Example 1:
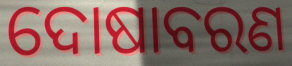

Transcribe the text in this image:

ଦୋଷାବରଣ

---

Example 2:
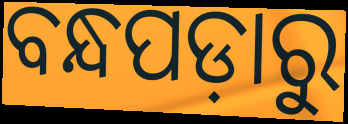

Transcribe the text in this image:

ବନ୍ଧପଡ଼ାରୁ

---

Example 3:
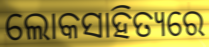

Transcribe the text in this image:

ଲୋକସାହିତ୍ୟରେ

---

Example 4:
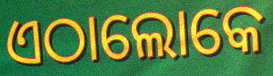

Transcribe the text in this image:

ଏଠାଲୋକେ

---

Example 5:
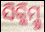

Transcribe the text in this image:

ସିକ୍କିମ୍କୁ